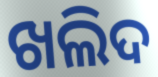
ଖଲିଦ